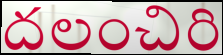
దలంచిరి